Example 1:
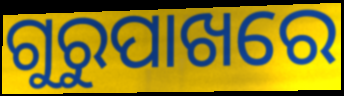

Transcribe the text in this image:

ଗୁରୁପାଖରେ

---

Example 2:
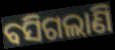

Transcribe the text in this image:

ବସିଗଲାଣି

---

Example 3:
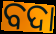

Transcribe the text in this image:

ବଦା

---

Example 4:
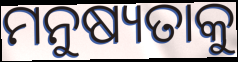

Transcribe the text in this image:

ମନୁଷ୍ୟତାକୁ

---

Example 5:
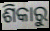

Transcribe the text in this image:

ଶିକାରୁ